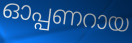
ഓപ്പണറായ